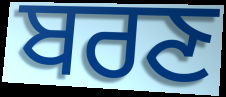
ਬਰਣ